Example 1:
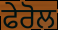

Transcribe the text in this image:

ਫੇਰੋਲ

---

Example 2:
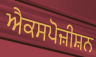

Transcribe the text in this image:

ਐਕਸਪੋਜ਼ੀਸ਼ਨ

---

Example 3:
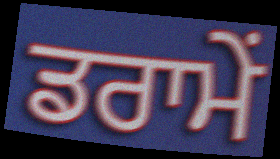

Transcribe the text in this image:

ਡਰਾਮੇਂ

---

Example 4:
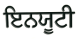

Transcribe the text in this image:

ਇਨਯੂਟੀ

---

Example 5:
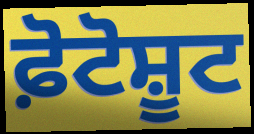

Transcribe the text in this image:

ਫ਼ੋਟੋਸ਼ੂਟ